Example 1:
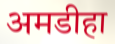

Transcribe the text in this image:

अमडीहा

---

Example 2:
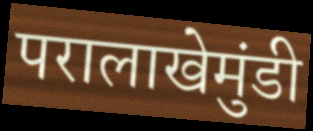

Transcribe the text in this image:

परालाखेमुंडी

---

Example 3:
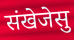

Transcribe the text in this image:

संखेजेसु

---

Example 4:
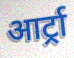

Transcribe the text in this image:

आर्ट्रा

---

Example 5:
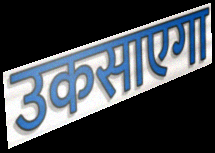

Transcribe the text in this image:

उकसाएगा